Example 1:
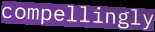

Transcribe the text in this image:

compellingly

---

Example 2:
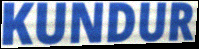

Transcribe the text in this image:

KUNDUR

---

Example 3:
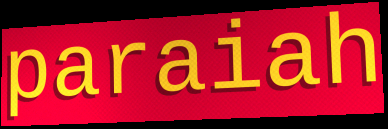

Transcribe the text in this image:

paraiah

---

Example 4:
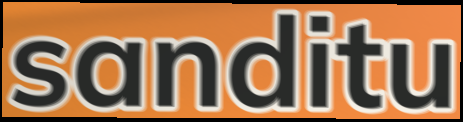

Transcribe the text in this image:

sanditu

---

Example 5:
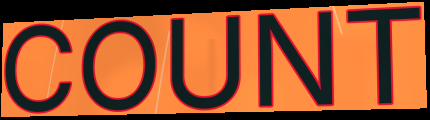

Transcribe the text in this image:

COUNT